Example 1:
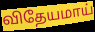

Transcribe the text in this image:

விதேயமாய்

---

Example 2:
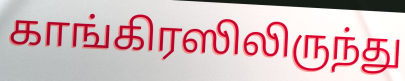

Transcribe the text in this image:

காங்கிரஸிலிருந்து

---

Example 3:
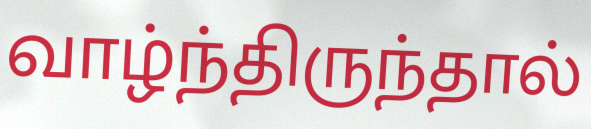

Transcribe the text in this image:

வாழ்ந்திருந்தால்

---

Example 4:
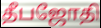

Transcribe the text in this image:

தீபஜோதி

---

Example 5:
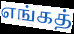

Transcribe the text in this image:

எங்கத்